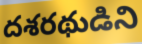
దశరథుడిని